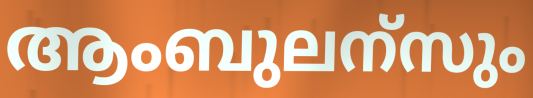
ആംബുലന്സും